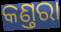
କଣ୍ତରା